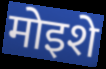
मोइशे